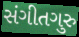
સંગીતગુરુ